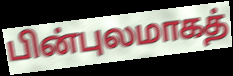
பின்புலமாகத்